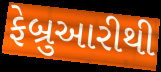
ફેબ્રુઆરીથી